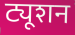
ट्यूशन